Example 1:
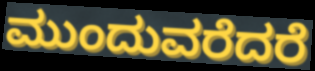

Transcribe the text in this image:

ಮುಂದುವರೆದರೆ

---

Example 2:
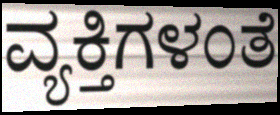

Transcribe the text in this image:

ವ್ಯಕ್ತಿಗಳಂತೆ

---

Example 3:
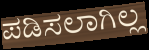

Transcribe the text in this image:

ಪಡಿಸಲಾಗಿಲ್ಲ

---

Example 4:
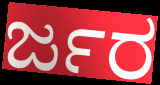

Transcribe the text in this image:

ರ್ಜರ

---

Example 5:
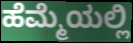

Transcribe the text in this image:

ಹೆಮ್ಮೆಯಲ್ಲಿ